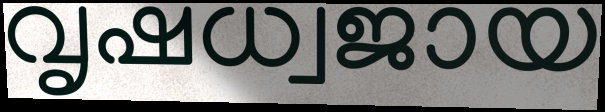
വൃഷധ്വജായ